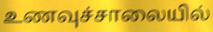
உணவுச்சாலையில்